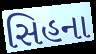
સિહના